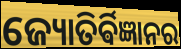
ଜ୍ୟୋତିର୍ଵିଜ୍ଞାନର